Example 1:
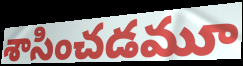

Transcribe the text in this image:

శాసించడమూ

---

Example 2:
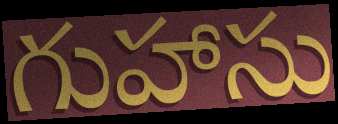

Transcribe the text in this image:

గుహాసు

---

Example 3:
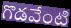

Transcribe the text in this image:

గొడవేంటి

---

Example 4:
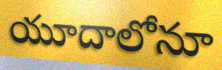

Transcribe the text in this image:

యూదాలోనూ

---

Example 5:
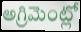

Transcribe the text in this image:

అగ్రిమెంట్లో